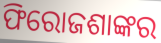
ଫିରୋଜଶାଙ୍କର